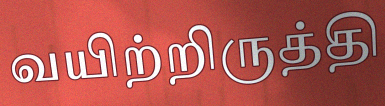
வயிற்றிருத்தி